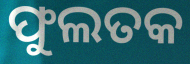
ଫୁଲତକ